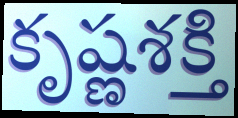
కృష్ణశక్తి